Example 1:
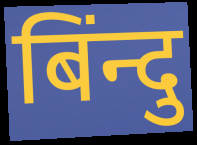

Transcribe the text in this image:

बिंन्दु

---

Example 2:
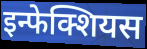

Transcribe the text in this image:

इन्फेक्शियस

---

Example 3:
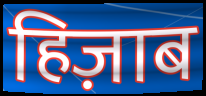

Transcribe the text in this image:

हिज़ाब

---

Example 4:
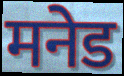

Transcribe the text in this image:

मनेड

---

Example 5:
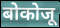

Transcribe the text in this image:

बोकोजू